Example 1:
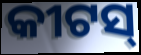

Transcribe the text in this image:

କୀଟସ୍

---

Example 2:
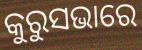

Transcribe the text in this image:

କୁରୁସଭାରେ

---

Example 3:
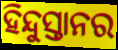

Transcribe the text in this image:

ହିନ୍ଦୁସ୍ତାନର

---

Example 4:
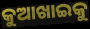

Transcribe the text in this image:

କୁଆଖାଇକୁ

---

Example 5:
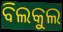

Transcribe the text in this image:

ବିଲକୁଲ